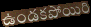
ఉండకపోయిరి